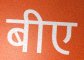
बीए